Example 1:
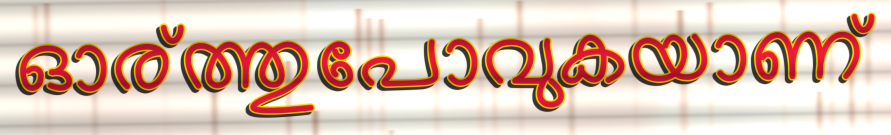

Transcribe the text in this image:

ഓര്ത്തുപോവുകയാണ്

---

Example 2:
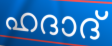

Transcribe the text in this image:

ഹദാദ്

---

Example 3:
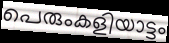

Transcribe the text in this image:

പെരുംകളിയാട്ടം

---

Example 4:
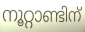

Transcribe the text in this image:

നൂറ്റാണ്ടിന്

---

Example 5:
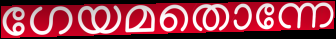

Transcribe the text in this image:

ഗേയമതൊന്നേ